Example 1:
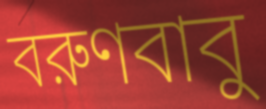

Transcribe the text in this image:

বরুণবাবু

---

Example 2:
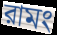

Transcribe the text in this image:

রামং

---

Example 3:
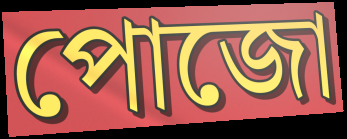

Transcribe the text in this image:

পোজো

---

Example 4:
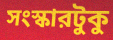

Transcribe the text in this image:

সংস্কারটুকু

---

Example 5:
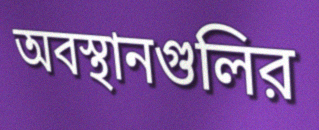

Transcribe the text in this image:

অবস্থানগুলির